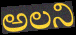
అలని